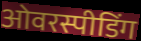
ओवरस्पीडिंग